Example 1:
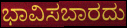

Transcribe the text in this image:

ಭಾವಿಸಬಾರದು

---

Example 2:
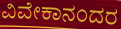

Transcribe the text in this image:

ವಿವೇಕಾನಂದರ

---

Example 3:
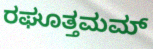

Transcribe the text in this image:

ರಘೂತ್ತಮಮ್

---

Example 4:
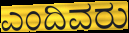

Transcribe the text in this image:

ಎಂದಿವರು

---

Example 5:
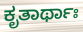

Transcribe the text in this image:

ಕೃತಾರ್ಥಾಃ